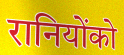
रानियोंको